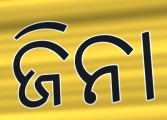
ଜିନା